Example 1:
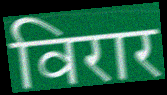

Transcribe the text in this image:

विरार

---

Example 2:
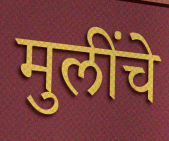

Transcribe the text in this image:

मुलींचे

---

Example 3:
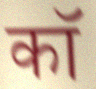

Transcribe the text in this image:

कॉ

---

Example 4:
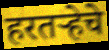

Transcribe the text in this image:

हरतऱ्हेचे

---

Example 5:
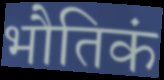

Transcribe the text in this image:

भौतिकं